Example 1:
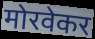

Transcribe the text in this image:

मोरवेकर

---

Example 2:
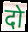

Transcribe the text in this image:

दो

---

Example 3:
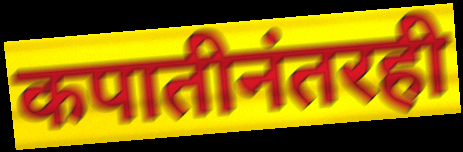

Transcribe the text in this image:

कपातीनंतरही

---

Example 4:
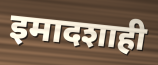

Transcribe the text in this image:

इमादशाही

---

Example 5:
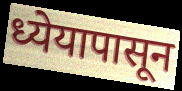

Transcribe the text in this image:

ध्येयापासून